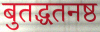
बुतद्धतनष्ठ